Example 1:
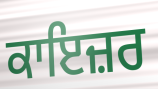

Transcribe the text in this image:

ਕਾਇਜ਼ਰ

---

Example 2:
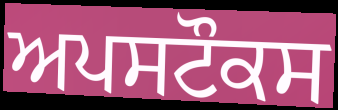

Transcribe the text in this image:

ਅਪਸਟੌਕਸ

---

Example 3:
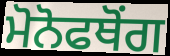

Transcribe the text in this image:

ਮੋਨੋਫਥੋਂਗ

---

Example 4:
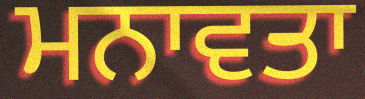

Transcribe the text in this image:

ਮਨਾਵਤਾ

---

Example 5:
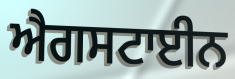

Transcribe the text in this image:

ਐਗਸਟਾਈਨ